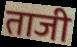
ताजी